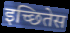
इच्छितेस